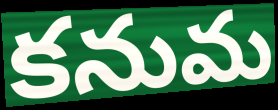
కనుమ